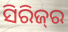
ସିରିଜ୍‌ର